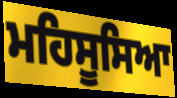
ਮਹਿਸੂਸਿਆ